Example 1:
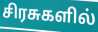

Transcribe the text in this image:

சிரசுகளில்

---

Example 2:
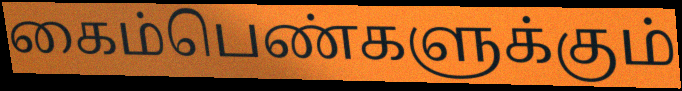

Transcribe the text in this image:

கைம்பெண்களுக்கும்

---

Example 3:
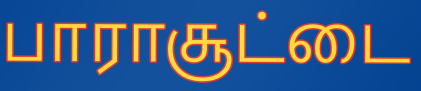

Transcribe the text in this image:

பாராசூட்டை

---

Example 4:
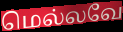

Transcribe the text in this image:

மெல்லவே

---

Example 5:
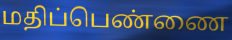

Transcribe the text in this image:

மதிப்பெண்ணை